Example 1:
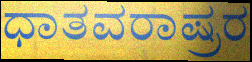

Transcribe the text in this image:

ಧಾತವರಾಷ್ರರ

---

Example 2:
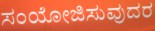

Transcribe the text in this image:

ಸಂಯೋಜಿಸುವುದರ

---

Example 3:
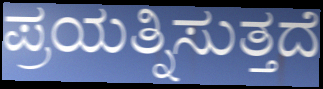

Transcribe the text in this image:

ಪ್ರಯತ್ನಿಸುತ್ತದೆ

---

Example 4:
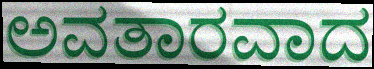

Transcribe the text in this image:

ಅವತಾರವಾದ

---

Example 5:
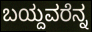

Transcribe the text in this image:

ಬಯ್ದವರೆನ್ನ